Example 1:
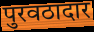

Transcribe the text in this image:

पुरवठादार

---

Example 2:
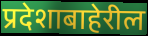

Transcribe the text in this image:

प्रदेशाबाहेरील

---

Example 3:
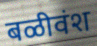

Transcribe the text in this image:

बळीवंश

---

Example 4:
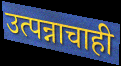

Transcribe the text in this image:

उत्पन्नाचाही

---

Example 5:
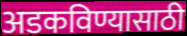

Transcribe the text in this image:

अडकविण्यासाठी